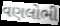
વણલોભી